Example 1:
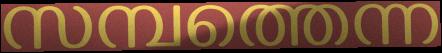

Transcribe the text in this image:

സമ്പത്തെന്ന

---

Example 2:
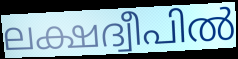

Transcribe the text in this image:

ലക്ഷദ്വീപിൽ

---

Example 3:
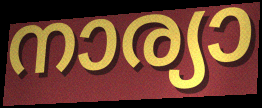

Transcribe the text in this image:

നാര്യാ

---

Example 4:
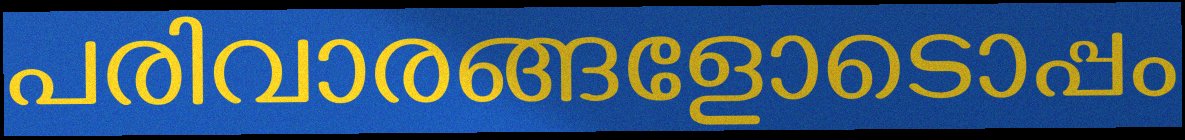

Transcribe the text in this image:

പരിവാരങ്ങളോടൊപ്പം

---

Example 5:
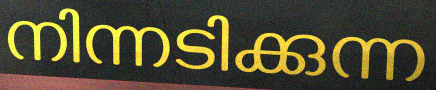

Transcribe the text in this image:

നിന്നടിക്കുന്ന